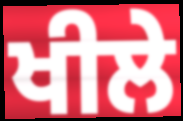
ਖੀਲੇ